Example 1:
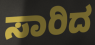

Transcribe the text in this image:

ಸಾರಿದ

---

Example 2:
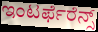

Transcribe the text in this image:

ಇಂಟರ್ಫೆರೆನ್ಸ್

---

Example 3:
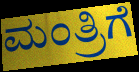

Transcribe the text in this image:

ಮಂತ್ರಿಗೆ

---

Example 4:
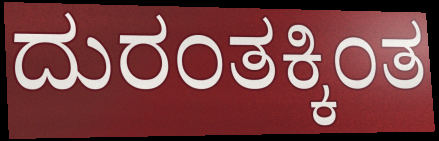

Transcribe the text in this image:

ದುರಂತಕ್ಕಿಂತ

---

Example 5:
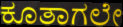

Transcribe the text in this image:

ಕೂತಾಗಲೇ